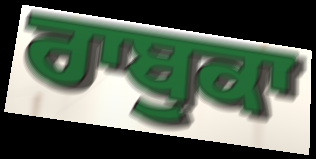
ਰਾਬੁਕਾ